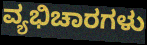
ವ್ಯಭಿಚಾರಗಳು